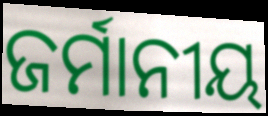
ଜର୍ମାନୀୟ